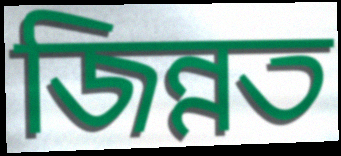
জিন্নত